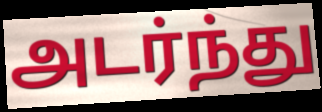
அடர்ந்து